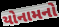
યોનામનો